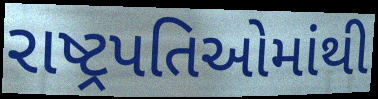
રાષ્ટ્રપતિઓમાંથી